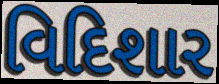
વિદિશાર